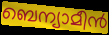
ബെന്യാമീൻ